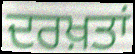
ਦਰਖ਼ਤਾਂ